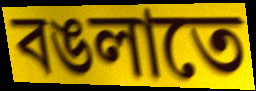
বঙলাতে